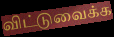
விட்டுவைக்க